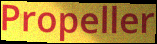
Propeller